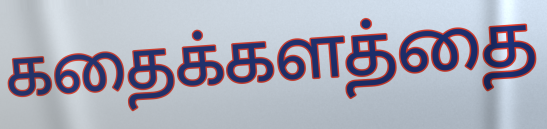
கதைக்களத்தை